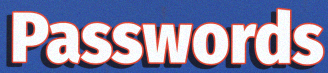
Passwords